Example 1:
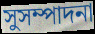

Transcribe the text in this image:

সুসম্পাদনা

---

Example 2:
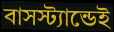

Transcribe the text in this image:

বাসস্ট্যান্ডেই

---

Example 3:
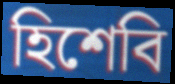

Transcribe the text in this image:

হিশেবি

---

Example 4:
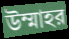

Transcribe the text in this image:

উম্মাহর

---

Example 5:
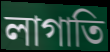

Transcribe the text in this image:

লাগাতি